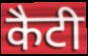
कैटी